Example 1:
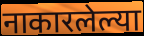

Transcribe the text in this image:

नाकारलेल्या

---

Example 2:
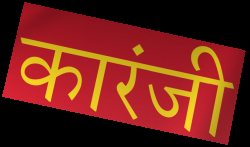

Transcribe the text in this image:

कारंजी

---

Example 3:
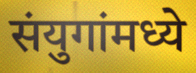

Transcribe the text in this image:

संयुगांमध्ये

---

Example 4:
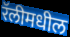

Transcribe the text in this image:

रॅलीमधील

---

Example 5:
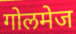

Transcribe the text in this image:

गोलमेज